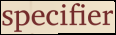
specifier